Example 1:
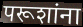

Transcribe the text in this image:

परूशांना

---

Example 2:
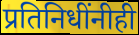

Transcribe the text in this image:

प्रतिनिधींनीही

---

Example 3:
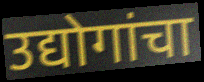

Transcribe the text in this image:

उद्योगांचा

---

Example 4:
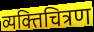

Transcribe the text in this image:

व्यक्तिचित्रण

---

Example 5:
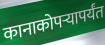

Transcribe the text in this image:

कानाकोपऱ्यापर्यंत